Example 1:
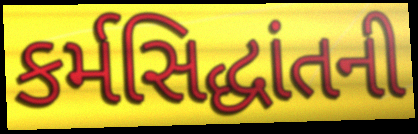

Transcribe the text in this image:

કર્મસિદ્ધાંતની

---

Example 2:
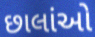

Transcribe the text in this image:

છાલાંઓ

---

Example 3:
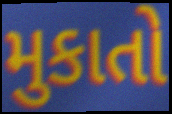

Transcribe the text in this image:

મુકાતો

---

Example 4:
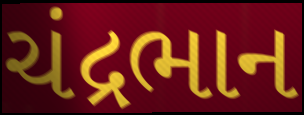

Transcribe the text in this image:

ચંદ્રભાન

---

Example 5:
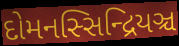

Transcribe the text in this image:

દોમનસ્સિન્દ્રિયઞ્ચ